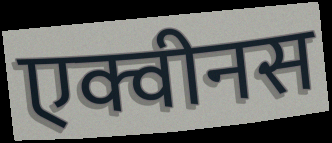
एक्वीनस